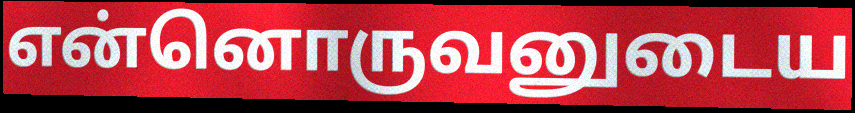
என்னொருவனுடைய